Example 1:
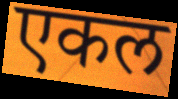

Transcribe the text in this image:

एकल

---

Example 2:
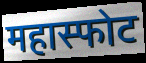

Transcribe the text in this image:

महास्फोट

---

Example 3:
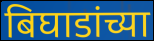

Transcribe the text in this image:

बिघाडांच्या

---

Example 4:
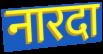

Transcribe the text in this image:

नारदा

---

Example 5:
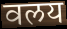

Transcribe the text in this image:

वलय